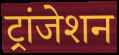
ट्रांजेशन